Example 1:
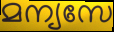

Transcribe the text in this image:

മന്യസേ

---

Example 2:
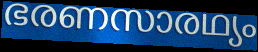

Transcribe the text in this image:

ഭരണസാരഥ്യം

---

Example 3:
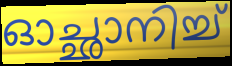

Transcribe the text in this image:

ഓച്ഛാനിച്ച്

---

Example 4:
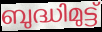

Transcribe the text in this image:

ബുദ്ധിമുട്ട്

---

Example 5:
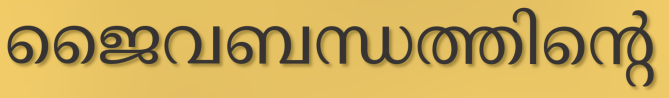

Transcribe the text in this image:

ജൈവബന്ധത്തിന്റെ